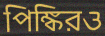
পিঙ্কিরও